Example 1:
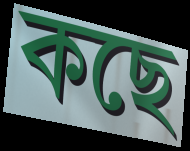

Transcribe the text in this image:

কছে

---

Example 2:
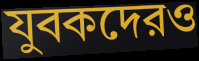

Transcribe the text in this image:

যুবকদেরও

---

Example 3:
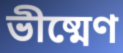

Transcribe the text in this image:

ভীষ্মেণ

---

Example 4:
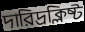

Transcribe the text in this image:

দারিদ্রক্লিষ্ট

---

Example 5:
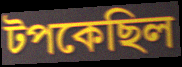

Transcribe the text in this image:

টপকেছিল